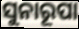
ସୁନାରୂପା